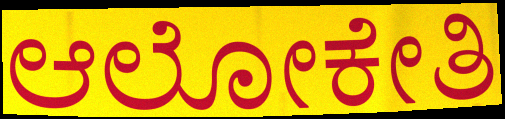
ಆಲೋಕೇತಿ